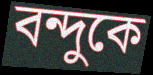
বন্দুকে